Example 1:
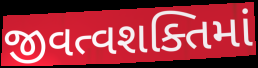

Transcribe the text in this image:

જીવત્વશક્તિમાં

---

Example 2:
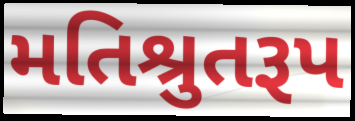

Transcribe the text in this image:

મતિશ્રુતરૂપ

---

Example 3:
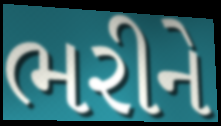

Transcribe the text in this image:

ભરીને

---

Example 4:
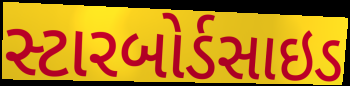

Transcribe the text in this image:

સ્ટારબોર્ડસાઇડ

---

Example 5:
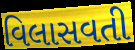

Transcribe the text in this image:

વિલાસવતી